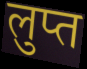
लुप्‍त